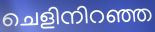
ചെളിനിറഞ്ഞ